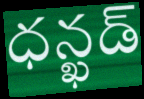
ధన్ఖడ్